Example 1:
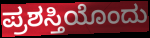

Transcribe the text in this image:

ಪ್ರಶಸ್ತಿಯೊಂದು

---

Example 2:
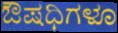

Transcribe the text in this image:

ಔಷಧಿಗಳೂ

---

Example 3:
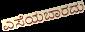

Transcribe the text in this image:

ಎಸೆಯಬಾರದು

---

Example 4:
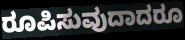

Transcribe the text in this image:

ರೂಪಿಸುವುದಾದರೂ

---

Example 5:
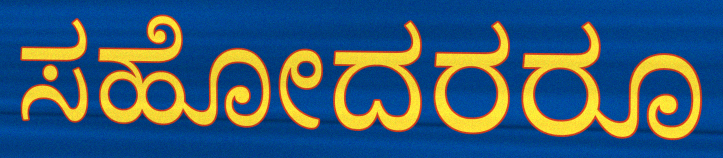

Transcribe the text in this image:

ಸಹೋದರರೂ